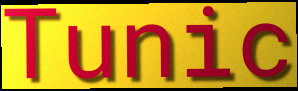
Tunic